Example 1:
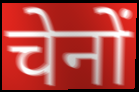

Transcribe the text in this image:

चेनों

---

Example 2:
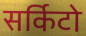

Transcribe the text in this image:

सर्किटो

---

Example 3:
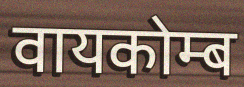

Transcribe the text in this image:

वायकोम्ब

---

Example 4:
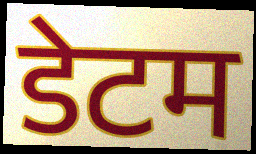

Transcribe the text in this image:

डेटम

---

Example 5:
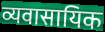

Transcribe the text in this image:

व्यवासायिक